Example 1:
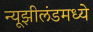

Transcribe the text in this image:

न्यूझीलंडमध्ये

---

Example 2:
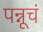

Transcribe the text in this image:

पन्नूचं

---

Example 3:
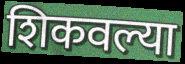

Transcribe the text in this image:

शिकवल्या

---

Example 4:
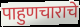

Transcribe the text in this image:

पाहुणचाराचे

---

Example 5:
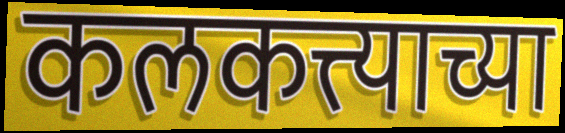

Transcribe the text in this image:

कलकत्त्याच्या